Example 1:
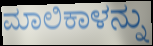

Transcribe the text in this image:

ಮಾಲಿಕಾಳನ್ನು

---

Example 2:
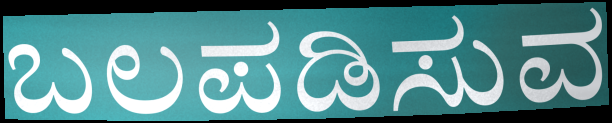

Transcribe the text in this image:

ಬಲಪಡಿಸುವ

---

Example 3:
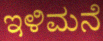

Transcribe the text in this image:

ಇಳಿಮನೆ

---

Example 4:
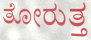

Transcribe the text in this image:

ತೋರುತ್ತ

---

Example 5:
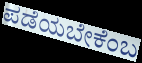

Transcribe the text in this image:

ಪಡೆಯಬೇಕೆಂಬ